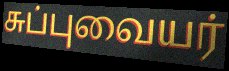
சுப்புவையர்